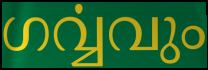
ഗൎവ്വവും